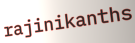
rajinikanths